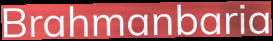
Brahmanbaria